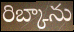
రిబ్కాను